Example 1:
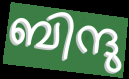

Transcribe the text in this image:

ബിന്ദു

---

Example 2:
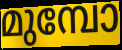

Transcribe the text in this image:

മുമ്പോ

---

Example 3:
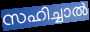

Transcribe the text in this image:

സഹിച്ചാൽ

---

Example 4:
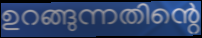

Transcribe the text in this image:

ഉറങ്ങുന്നതിന്റെ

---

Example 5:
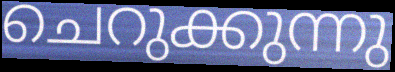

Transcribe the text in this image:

ചെറുക്കുന്നു